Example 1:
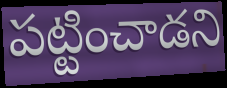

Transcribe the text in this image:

పట్టించాడని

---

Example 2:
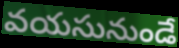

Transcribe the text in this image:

వయసునుండే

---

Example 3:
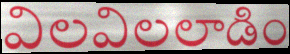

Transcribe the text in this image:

విలవిలలాడిం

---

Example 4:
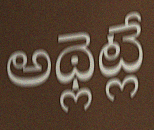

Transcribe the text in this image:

అథ్లెట్లే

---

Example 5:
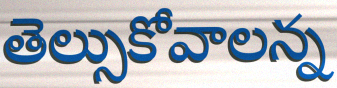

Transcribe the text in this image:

తెల్సుకోవాలన్న